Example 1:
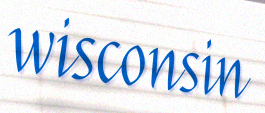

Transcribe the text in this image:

wisconsin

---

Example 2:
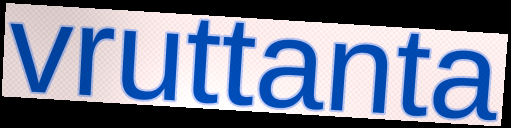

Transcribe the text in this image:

vruttanta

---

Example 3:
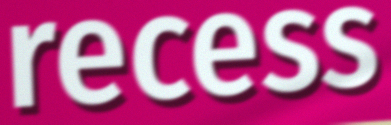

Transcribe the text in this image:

recess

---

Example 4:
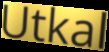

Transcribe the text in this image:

Utkal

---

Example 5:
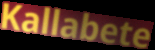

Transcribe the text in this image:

Kallabete